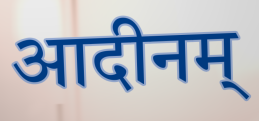
आदीनम्